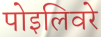
पोइलिवरे